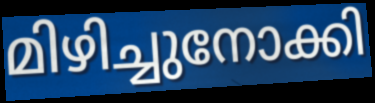
മിഴിച്ചുനോക്കി